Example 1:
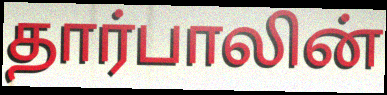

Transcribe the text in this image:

தார்பாலின்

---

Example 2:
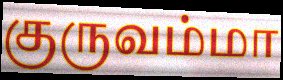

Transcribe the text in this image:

குருவம்மா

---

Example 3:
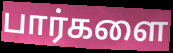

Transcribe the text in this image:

பார்களை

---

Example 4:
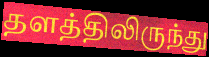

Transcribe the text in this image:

தளத்திலிருந்து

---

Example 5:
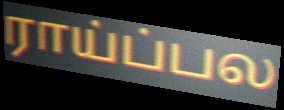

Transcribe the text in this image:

ராய்ப்பல